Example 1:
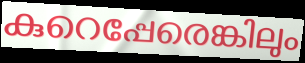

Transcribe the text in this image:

കുറെപ്പേരെങ്കിലും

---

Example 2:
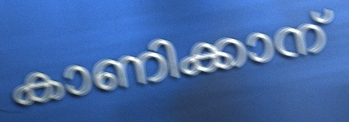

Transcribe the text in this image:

കാണിക്കാന്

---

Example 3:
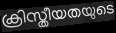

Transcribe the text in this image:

ക്രിസ്തീയതയുടെ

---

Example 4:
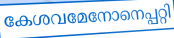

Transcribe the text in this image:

കേശവമേനോനെപ്പറ്റി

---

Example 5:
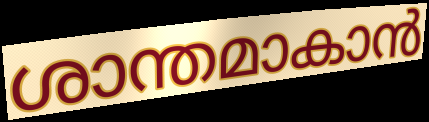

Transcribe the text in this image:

ശാന്തമാകാൻ